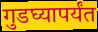
गुडघ्यापर्यंत